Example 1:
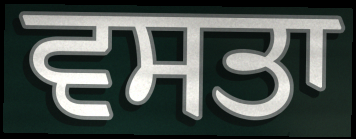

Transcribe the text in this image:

ਵਸਤਾ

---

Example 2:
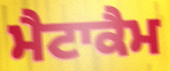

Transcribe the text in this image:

ਮੈਟਾਕੈਮ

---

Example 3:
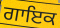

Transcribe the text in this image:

ਗਾਇਕ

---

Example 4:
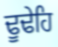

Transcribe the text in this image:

ਢੂਢੇਹਿ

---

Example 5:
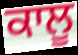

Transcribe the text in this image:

ਕਾਲੂ